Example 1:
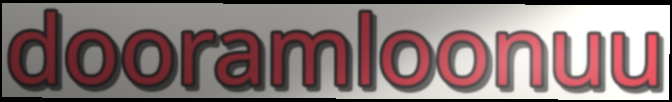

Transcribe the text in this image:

dooramloonuu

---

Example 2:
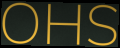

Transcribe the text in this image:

OHS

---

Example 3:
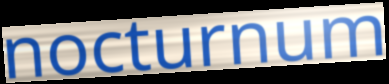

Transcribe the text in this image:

nocturnum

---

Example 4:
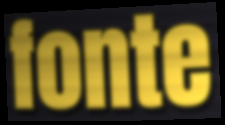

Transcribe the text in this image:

fonte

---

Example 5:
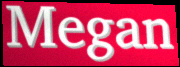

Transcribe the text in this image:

Megan